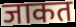
जाकत